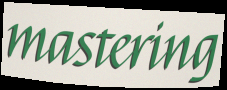
mastering